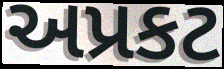
અપ્રકટ